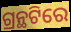
ଗ୍ରନ୍ଥଟିରେ